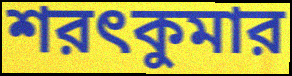
শরৎকুমার